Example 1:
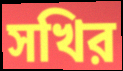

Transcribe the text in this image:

সখির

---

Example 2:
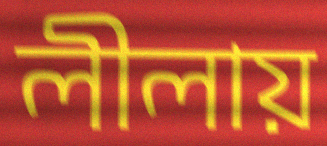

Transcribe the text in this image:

লীলায়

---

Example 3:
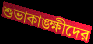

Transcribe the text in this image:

শুভাকাঙ্ক্ষীদের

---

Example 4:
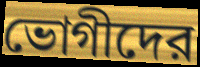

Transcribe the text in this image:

ভোগীদের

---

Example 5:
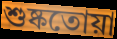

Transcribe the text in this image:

শুষ্কতোয়া